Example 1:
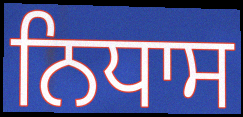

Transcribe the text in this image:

ਨਿਧਾਸ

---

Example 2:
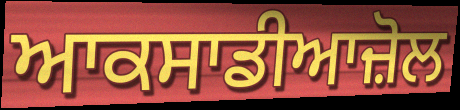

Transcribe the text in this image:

ਆਕਸਾਡੀਆਜ਼ੋਲ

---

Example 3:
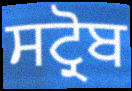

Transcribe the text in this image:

ਸਟ੍ਰੋਬ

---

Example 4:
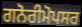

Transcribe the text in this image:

ਗਨੋਰੀਮੋਪਸਰ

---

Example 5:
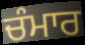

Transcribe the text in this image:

ਚੰਮਾਰ